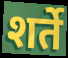
शर्ते